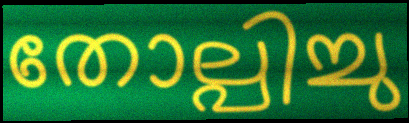
തോല്പിച്ചു